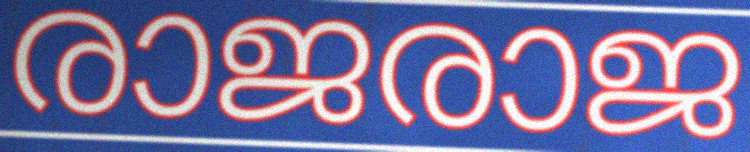
രാജരാജ